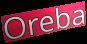
Oreba